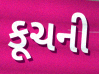
કૂચની